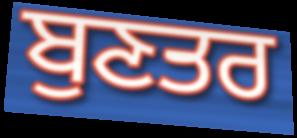
ਬੁਣਤਰ